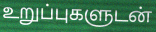
உறுப்புகளுடன்